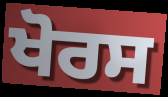
ਖੋਰਸ